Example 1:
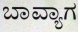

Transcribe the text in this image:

ಬಾವ್ಯಾಗ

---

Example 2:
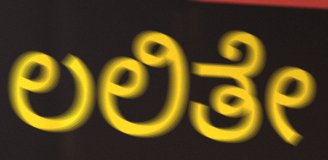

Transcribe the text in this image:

ಲಲಿತೇ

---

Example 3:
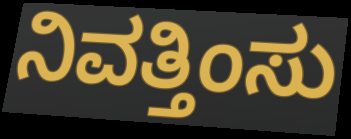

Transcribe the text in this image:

ನಿವತ್ತಿಂಸು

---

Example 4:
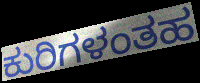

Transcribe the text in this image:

ಕುರಿಗಳಂತಹ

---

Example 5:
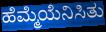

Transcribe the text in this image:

ಹೆಮ್ಮೆಯೆನಿಸಿತು